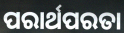
ପରାର୍ଥପରତା